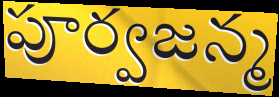
పూర్వజన్మ